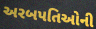
અરબપતિઓની